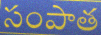
సంపాత